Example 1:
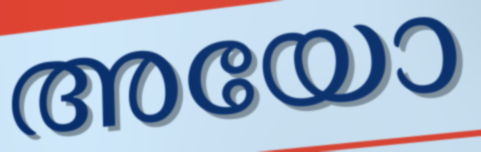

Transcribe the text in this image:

അയോ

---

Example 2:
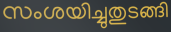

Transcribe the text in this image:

സംശയിച്ചുതുടങ്ങി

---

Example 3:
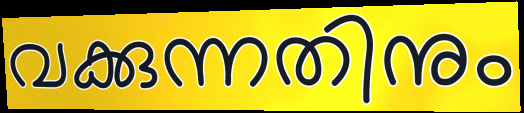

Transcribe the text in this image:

വക്കുന്നതിനും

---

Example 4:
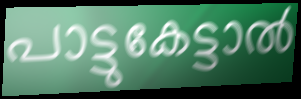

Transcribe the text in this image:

പാട്ടുകേട്ടാൽ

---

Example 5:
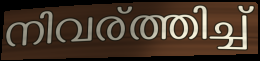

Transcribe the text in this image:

നിവര്ത്തിച്ച്